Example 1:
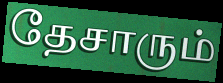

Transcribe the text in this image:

தேசாரும்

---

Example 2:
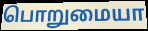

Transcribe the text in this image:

பொறுமையா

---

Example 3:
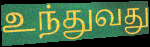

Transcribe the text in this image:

உந்துவது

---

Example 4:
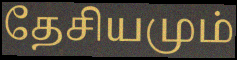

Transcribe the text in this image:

தேசியமும்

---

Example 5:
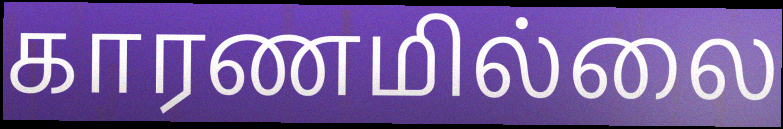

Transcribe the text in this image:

காரணமில்லை